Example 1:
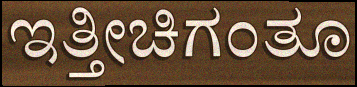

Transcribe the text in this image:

ಇತ್ತೀಚಿಗಂತೂ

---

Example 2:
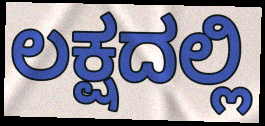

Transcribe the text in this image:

ಲಕ್ಷದಲ್ಲಿ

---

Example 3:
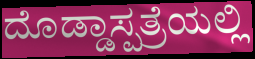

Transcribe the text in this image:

ದೊಡ್ಡಾಸ್ಪತ್ರೆಯಲ್ಲಿ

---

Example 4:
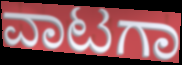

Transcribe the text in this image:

ವಾಟಗಾ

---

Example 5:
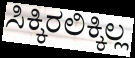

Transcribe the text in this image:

ಸಿಕ್ಕಿರಲಿಕ್ಕಿಲ್ಲ